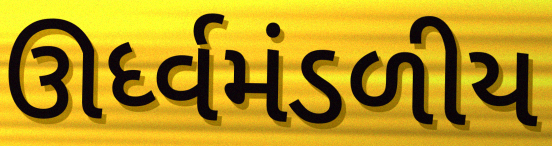
ઊર્ધ્વમંડળીય